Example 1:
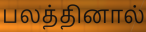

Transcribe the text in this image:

பலத்தினால்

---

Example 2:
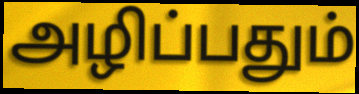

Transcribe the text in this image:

அழிப்பதும்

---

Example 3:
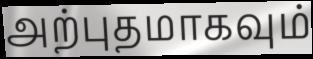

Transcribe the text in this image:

அற்புதமாகவும்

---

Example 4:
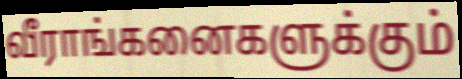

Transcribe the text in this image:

வீராங்கனைகளுக்கும்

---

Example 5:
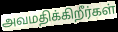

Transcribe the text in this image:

அவமதிக்கிறீர்கள்